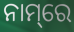
ନାମ୍‌ରେ